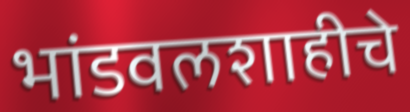
भांडवलशाहीचे